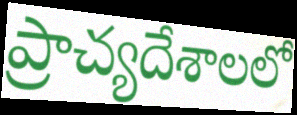
ప్రాచ్యదేశాలలో